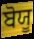
ਬੋਯੂ